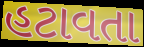
હટાવતા